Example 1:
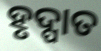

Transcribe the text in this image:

ହୃଦ୍ପାତ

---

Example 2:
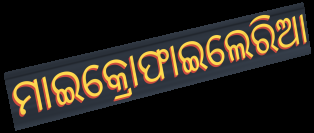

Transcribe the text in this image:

ମାଇକ୍ରୋଫାଇଲେରିଆ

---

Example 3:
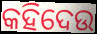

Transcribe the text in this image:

କହିଦେଉ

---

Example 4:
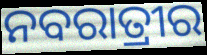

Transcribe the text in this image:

ନବରାତ୍ରୀର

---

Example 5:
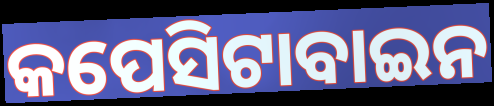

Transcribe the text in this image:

କପେସିଟାବାଇନ